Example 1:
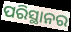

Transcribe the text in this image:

ପରିସ୍ଥାନର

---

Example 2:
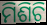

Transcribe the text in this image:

ମିଶିଚି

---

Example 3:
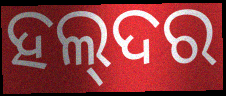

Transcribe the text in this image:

ହଲ୍‌ଦର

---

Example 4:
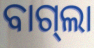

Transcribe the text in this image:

ବାଗ୍‌ଲା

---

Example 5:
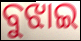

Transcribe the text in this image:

ବୁଝାଇ